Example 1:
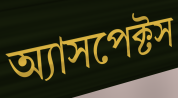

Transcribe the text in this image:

অ্যাসপেক্টস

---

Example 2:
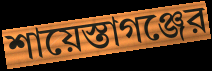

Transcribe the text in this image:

শায়েস্তাগঞ্জের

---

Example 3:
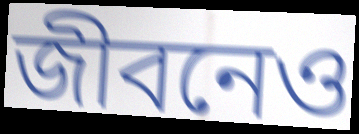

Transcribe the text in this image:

জীবনেও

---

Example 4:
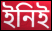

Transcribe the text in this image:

ইনিই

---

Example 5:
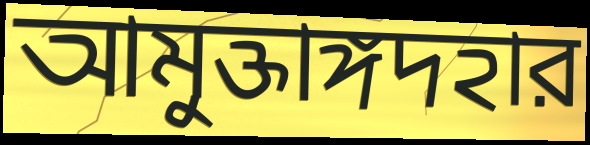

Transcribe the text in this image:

আমুক্তাঙ্গদহার